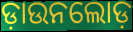
ଡ଼ାଉନଲୋଡ଼